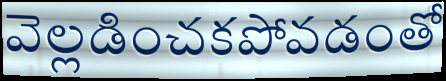
వెల్లడించకపోవడంతో